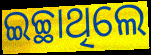
ଇଚ୍ଛାଥିଲେ